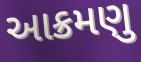
આક્રમણુ